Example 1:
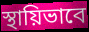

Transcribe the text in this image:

স্থায়িভাবে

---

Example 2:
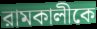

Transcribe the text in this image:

রামকালীকে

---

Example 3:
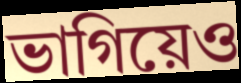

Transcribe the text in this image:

ভাগিয়েও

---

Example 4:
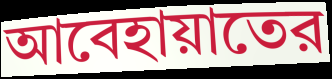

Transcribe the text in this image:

আবেহায়াতের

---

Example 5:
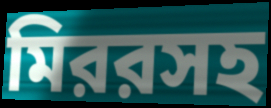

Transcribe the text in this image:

মিররসহ